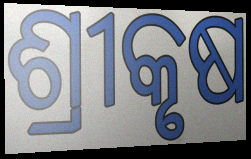
ଶ୍ରୀକୃଷ